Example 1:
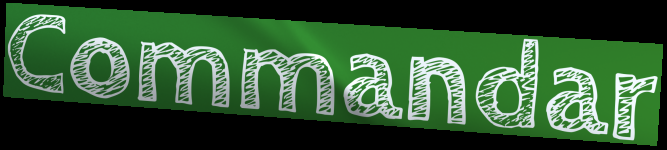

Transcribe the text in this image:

Commandar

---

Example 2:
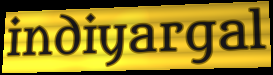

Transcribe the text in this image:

indiyargal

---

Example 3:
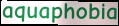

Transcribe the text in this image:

aquaphobia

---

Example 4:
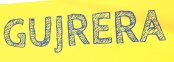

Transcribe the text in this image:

GUJRERA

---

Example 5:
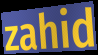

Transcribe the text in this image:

zahid